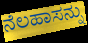
ನೆಲಹಾಸನ್ನು